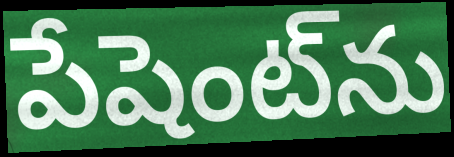
పేషెంట్‌ను